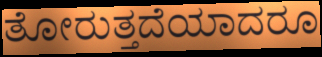
ತೋರುತ್ತದೆಯಾದರೂ